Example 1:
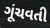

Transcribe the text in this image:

ગૂંચવતી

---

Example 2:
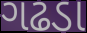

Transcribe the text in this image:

ગઢડા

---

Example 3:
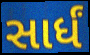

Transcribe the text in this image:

સાર્ધં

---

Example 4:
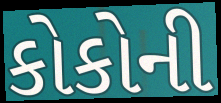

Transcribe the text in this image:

કોકોની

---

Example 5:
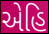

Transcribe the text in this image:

એહિ